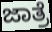
ಜಾತ್ರೆ